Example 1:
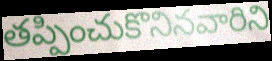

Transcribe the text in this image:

తప్పించుకొనినవారిని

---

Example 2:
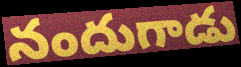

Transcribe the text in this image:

నందుగాడు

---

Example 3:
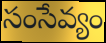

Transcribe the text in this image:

సంసేవ్యం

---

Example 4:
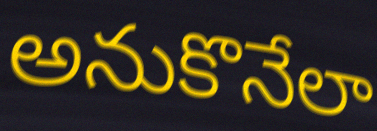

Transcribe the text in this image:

అనుకొనేలా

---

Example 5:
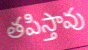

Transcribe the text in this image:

తపిస్తావు